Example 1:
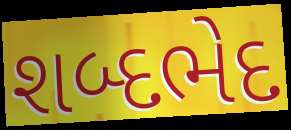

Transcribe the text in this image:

શબ્દભેદ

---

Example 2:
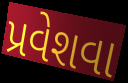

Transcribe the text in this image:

પ્રવેશવા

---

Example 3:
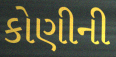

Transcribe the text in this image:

કોણીની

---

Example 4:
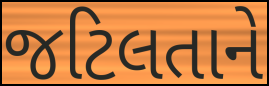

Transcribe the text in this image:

જટિલતાને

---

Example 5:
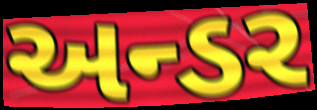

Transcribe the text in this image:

અન્ડર